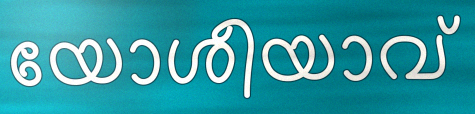
യോശീയാവ്